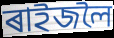
ৰাইজলৈ